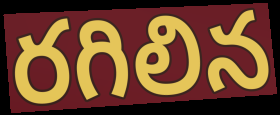
రగిలిన